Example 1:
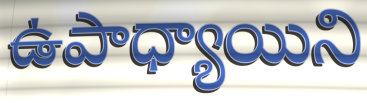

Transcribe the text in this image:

ఉపాధ్యాయిని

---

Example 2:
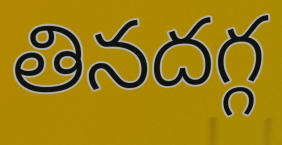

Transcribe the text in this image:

తినదగ్గ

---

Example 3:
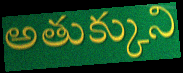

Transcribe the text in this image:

అతుక్కుని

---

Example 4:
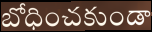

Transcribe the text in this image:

బోధించకుండా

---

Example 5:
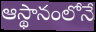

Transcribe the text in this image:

ఆస్థానంలోనే